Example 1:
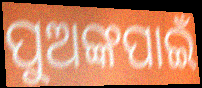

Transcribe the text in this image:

ପୁଅଙ୍କପାଇଁ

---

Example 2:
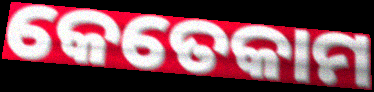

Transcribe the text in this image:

କେତେକାମ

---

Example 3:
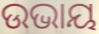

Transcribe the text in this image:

ଉଭାୟ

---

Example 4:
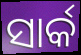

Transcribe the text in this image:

ସାର୍କ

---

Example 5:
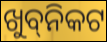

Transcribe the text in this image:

ଖୁବ୍‌ନିକଟ